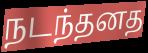
நடந்தனத